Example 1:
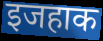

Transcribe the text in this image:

इजहाक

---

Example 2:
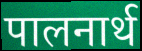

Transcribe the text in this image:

पालनार्थ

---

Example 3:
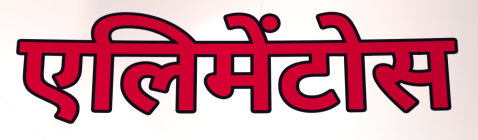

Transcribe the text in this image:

एलिमेंटोस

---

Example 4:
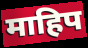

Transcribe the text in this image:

माहिप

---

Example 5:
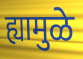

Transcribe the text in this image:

ह्यामुळे